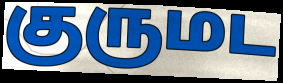
குருமட